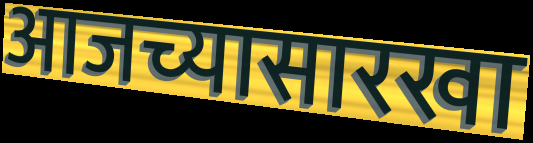
आजच्यासारखा